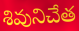
శివునిచేత